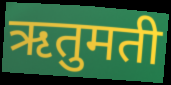
ऋतुमती